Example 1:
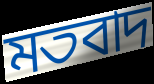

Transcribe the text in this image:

মতবাদ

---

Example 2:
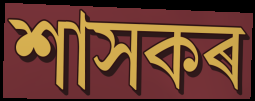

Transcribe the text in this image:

শাসকৰ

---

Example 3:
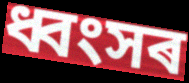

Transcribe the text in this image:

ধ্বংসৰ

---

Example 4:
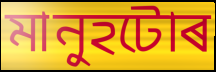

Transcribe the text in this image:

মানুহটোৰ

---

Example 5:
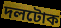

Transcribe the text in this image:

দলটোক